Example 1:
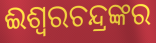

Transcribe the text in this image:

ଈଶ୍ଵରଚନ୍ଦ୍ରଙ୍କର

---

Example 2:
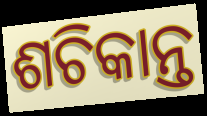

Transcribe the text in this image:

ଶଚିକାନ୍ତ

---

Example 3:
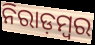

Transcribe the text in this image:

ନିରାଡ଼ମ୍ବର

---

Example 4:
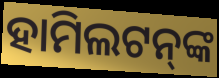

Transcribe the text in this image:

ହାମିଲଟନ୍‍ଙ୍କ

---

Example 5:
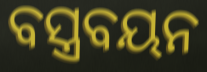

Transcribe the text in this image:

ବସ୍ତ୍ରବୟନ